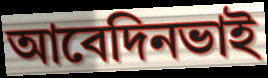
আবেদিনভাই